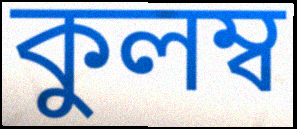
কুলম্ব